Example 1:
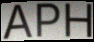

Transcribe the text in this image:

APH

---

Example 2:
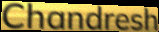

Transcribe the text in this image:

Chandresh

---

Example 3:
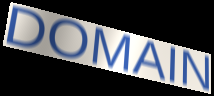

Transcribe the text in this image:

DOMAIN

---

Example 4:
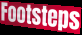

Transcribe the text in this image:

Footsteps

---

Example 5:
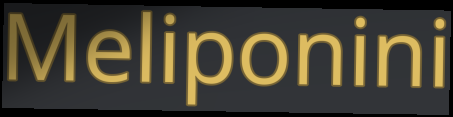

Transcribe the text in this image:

Meliponini